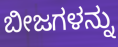
ಬೀಜಗಳನ್ನು